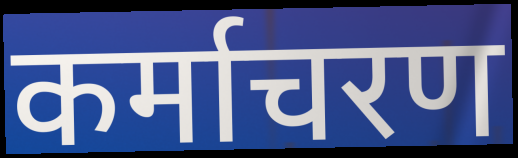
कर्माचरण